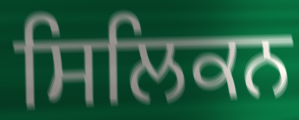
ਸਿਲਿਕਨ